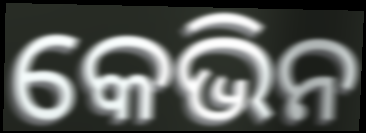
କେଭିନ